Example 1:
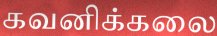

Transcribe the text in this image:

கவனிக்கலை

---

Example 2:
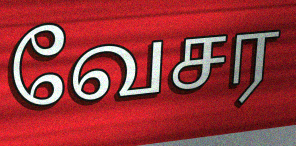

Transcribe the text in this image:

வேசர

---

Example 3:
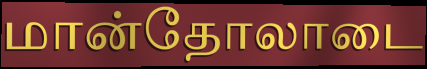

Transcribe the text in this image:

மான்தோலாடை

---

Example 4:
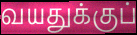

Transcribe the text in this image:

வயதுக்குப்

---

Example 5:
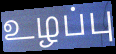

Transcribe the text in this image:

உழப்பு